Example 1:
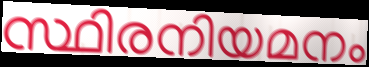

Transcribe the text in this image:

സ്ഥിരനിയമനം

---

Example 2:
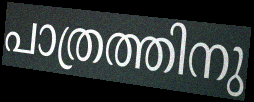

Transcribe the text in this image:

പാത്രത്തിനു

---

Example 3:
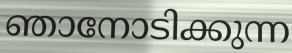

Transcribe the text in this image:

ഞാനോടിക്കുന്ന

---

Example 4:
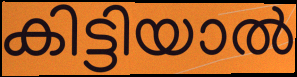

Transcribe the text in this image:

കിട്ടിയാൽ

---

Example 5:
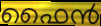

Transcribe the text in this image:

ഫൈൻ